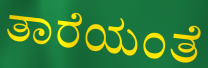
ತಾರೆಯಂತೆ